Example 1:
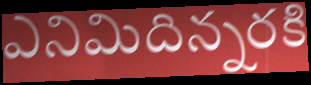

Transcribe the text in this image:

ఎనిమిదిన్నరకి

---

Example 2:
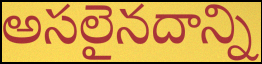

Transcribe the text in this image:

అసలైనదాన్ని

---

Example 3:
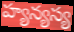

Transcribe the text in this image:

హ్యన్యస్య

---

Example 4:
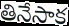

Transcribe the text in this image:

తినేసాక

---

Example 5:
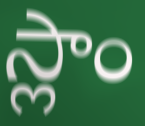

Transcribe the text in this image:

స్లాం